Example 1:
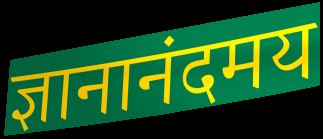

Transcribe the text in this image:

ज्ञानानंदमय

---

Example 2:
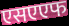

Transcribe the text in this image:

एसएएफ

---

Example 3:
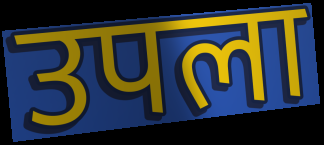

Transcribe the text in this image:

उपला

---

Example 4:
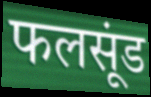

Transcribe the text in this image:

फलसूंड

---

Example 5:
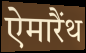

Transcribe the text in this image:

ऐमारैंथ